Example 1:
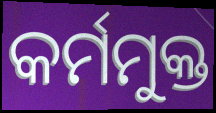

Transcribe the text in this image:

କର୍ମମୁକ୍ତ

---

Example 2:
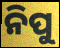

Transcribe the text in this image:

ନିପୁ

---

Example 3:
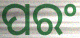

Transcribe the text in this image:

ପରଂ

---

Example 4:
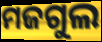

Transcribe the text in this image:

ମଜଗୁଲ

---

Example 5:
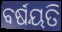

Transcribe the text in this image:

ବର୍ଷୟତି